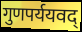
गुणपर्ययवद्